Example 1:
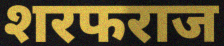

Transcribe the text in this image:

शरफराज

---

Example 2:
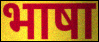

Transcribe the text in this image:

भाषा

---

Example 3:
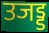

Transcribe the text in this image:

उजड्ड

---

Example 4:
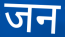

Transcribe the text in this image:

जन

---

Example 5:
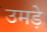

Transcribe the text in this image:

उमड़े